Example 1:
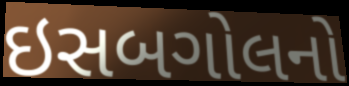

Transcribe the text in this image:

ઇસબગોલનો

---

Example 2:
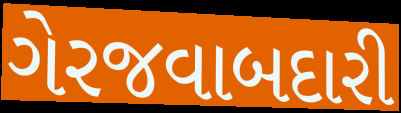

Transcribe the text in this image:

ગેરજવાબદારી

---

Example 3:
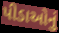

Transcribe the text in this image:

પીડાઓનું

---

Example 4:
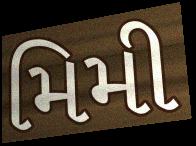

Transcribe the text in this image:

મિમી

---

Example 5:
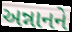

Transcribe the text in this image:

અન્નાનને